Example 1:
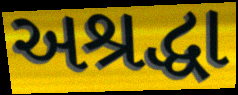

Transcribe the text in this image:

અશ્રદ્ધા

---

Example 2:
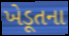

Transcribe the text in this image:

ખેડૂતના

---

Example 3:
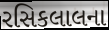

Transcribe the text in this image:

રસિકલાલના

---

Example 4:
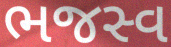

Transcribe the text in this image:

ભજસ્વ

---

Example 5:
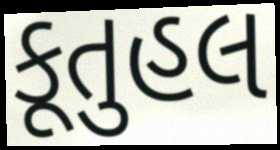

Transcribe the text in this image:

કૂતુહલ